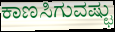
ಕಾಣಸಿಗುವಷ್ಟು